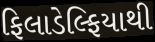
ફિલાડેલ્ફિયાથી